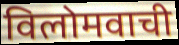
विलोमवाची